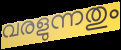
വരളുന്നതും